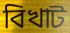
বিখাট